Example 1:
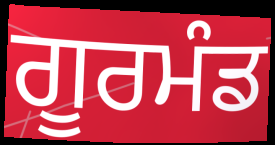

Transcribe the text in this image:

ਗੂਰਮੰਡ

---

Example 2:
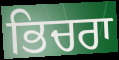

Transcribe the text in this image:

ਭਿਚਰਾ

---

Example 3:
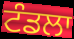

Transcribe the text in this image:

ਟੰਡਲਾ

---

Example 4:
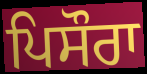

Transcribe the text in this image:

ਪਿਸੌਰਾ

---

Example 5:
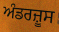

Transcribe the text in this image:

ਅੰਡਰਜ਼ੂਸ